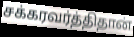
சக்கரவர்த்திதான்